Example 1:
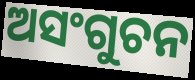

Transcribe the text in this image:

ଅସଂଗୁଚନ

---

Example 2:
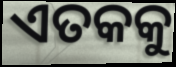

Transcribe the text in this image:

ଏତକକୁ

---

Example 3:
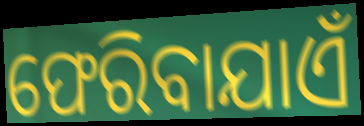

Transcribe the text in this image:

ଫେରିବାଯାଏଁ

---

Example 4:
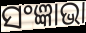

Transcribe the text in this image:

ସଂଜ୍ଞାଭା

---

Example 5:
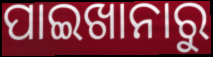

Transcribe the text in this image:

ପାଇଖାନାରୁ